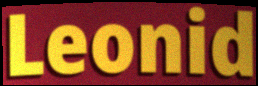
Leonid